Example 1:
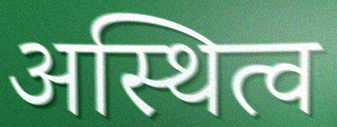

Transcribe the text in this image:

अस्थित्व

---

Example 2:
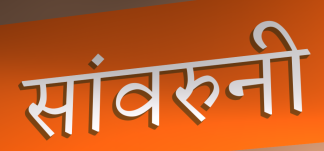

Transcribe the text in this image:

सांवरुनी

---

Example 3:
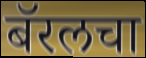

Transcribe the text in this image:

बॅरलचा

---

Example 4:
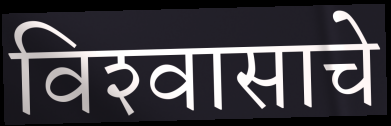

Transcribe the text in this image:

विश्वासाचे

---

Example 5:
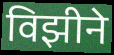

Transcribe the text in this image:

विझीने